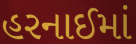
હરનાઈમાં